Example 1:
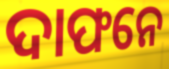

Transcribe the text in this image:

ଦାଫନେ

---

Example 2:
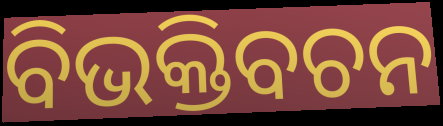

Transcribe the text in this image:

ବିଭକ୍ତିବଚନ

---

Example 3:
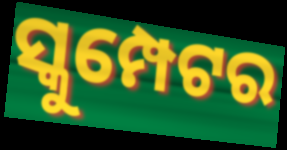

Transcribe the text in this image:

ସ୍କୁମ୍ପେଟର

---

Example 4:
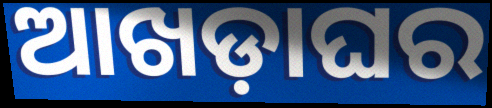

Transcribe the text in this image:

ଆଖଡ଼ାଘର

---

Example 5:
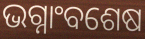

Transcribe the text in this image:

ଭଗ୍ନାଂବଶେଷ